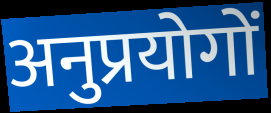
अनुप्रयोगों